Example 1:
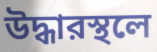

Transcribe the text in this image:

উদ্ধারস্থলে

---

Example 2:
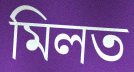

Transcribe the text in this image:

মিলত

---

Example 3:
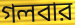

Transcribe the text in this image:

গলবার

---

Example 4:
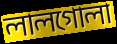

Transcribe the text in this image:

লালগোলা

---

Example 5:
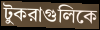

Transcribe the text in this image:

টুকরাগুলিকে